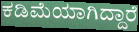
ಕಡಿಮೆಯಾಗಿದ್ದಾರೆ